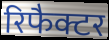
रिफैक्टर